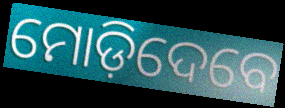
ମୋଡ଼ିଦେବେ